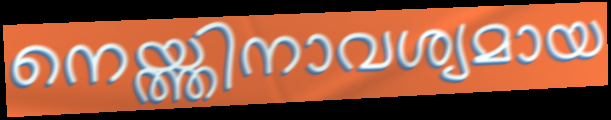
നെയ്ത്തിനാവശ്യമായ